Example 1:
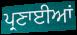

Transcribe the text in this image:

ਪ੍ਰਣਾਈਆਂ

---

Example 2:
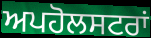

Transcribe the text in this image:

ਅਪਹੋਲਸਟਰਾਂ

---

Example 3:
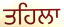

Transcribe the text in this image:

ਤਹਿਲਾ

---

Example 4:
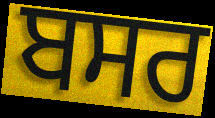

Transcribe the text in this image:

ਬਸਰ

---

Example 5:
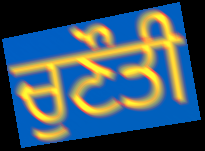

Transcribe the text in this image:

ਚੁਣੌਤੀ